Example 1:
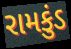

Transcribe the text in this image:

રામકુંડ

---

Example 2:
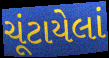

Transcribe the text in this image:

ચૂંટાયેલાં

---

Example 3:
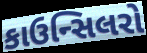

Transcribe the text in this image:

કાઉન્સિલરો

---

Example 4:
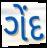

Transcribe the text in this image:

ગેંદ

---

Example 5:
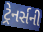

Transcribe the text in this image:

ટ્રેનર્સની